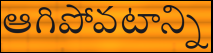
ఆగిపోవటాన్ని